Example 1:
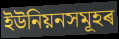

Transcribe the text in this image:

ইউনিয়নসমূহৰ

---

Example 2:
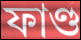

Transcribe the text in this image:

ফাণ্ড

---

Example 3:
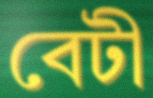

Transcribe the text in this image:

বেটী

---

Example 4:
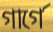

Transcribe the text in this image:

গাৰ্গে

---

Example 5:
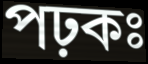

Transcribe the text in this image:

পঢ়কঃ